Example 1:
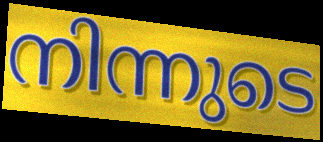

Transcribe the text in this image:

നിന്നുടെ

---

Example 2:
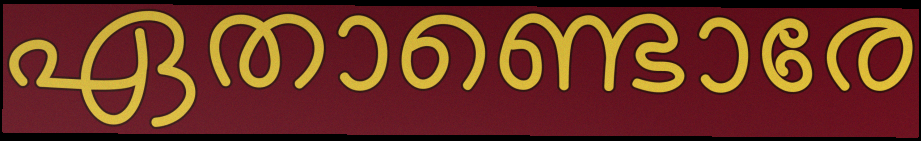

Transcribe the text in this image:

ഏതാണ്ടൊരേ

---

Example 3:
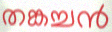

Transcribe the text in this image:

തങ്കച്ചൻ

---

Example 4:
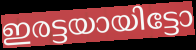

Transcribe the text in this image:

ഇരട്ടയായിട്ടോ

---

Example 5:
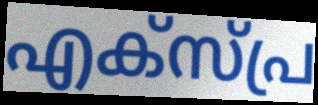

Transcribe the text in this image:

എക്സ്പ്ര